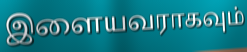
இளையவராகவும்